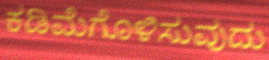
ಕಡಿಮೆಗೊಳಿಸುವುದು